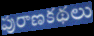
పురాణకథలు